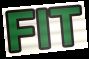
FIT